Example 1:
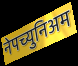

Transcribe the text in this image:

नेपच्युनिअम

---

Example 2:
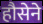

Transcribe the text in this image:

हौसेने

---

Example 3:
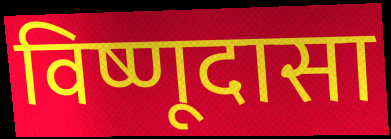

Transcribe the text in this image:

विष्णूदासा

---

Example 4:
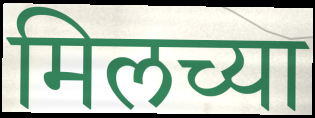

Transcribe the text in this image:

मिलच्या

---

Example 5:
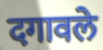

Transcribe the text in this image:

दगावले